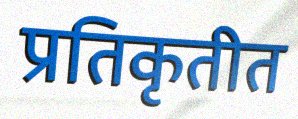
प्रतिकृतीत